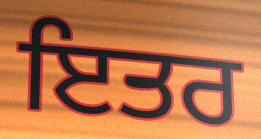
ਇਤਰ